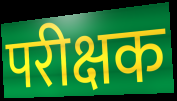
परीक्षक